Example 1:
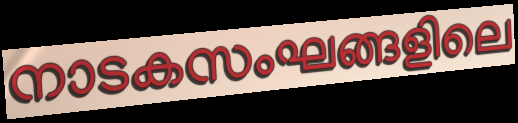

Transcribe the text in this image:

നാടകസംഘങ്ങളിലെ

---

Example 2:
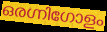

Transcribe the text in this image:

ഒരഗ്നിഗോളം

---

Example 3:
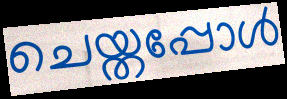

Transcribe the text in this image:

ചെയ്തപ്പോൾ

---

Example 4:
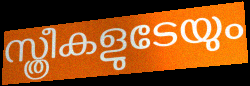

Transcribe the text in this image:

സ്ത്രീകളുടേയും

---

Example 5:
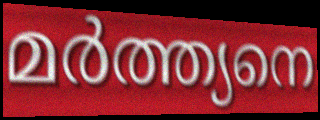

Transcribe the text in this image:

മർത്ത്യനെ